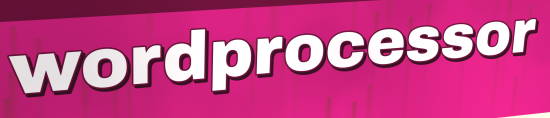
wordprocessor